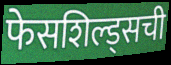
फेसशिल्ड्सची